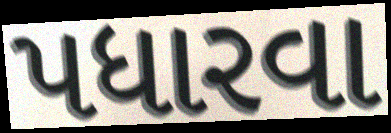
પધારવા